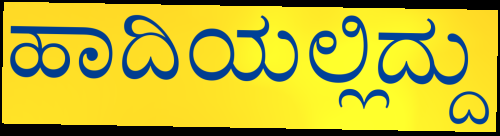
ಹಾದಿಯಲ್ಲಿದ್ದು